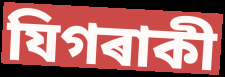
যিগৰাকী